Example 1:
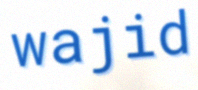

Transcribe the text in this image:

wajid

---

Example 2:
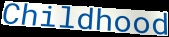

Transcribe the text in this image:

Childhood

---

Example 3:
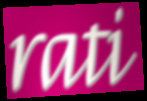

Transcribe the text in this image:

rati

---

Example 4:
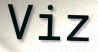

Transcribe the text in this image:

Viz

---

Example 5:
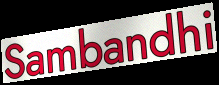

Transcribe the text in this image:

Sambandhi